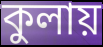
কুলায়